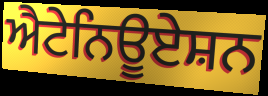
ਐਟੇਨਿਊਏਸ਼ਨ